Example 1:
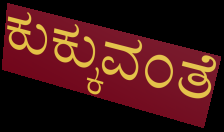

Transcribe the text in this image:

ಕುಕ್ಕುವಂತೆ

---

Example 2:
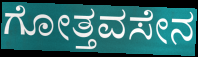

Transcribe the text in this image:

ಗೋತ್ತವಸೇನ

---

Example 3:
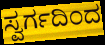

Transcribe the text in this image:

ಸ್ವರ್ಗದಿಂದ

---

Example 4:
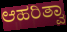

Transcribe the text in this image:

ಆಹರಿತ್ವಾ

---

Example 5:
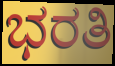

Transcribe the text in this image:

ಭರತಿ